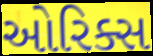
ઓરિક્સ